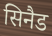
सिनैड